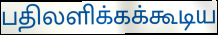
பதிலளிக்கக்கூடிய